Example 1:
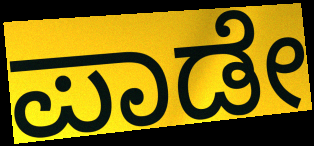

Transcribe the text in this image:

ಪಾಡೇ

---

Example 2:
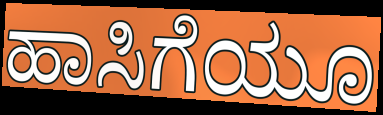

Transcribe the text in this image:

ಹಾಸಿಗೆಯೂ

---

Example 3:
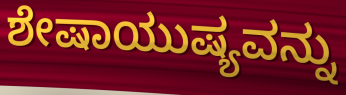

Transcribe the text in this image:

ಶೇಷಾಯುಷ್ಯವನ್ನು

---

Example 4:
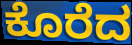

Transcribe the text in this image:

ಕೊರೆದ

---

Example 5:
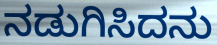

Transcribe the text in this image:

ನಡುಗಿಸಿದನು